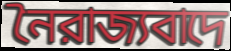
নৈরাজ্যবাদে